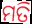
ମତି